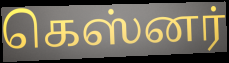
கெஸ்னர்